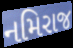
નમિરાજ